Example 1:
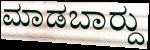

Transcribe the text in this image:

ಮಾಡಬಾರ್‍ದು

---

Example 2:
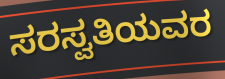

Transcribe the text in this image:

ಸರಸ್ವತಿಯವರ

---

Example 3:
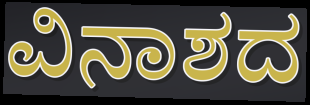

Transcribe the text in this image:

ವಿನಾಶದ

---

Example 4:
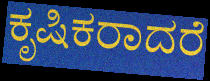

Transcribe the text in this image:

ಕೃಷಿಕರಾದರೆ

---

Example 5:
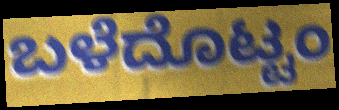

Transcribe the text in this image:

ಬಳೆದೊಟ್ಟಂ